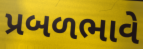
પ્રબળભાવે